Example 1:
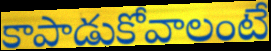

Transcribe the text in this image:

కాపాడుకోవాలంటే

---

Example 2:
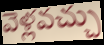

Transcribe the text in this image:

వెళ్లవచ్చు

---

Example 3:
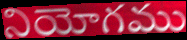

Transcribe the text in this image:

నియోగము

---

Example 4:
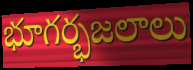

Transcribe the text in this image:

భూగర్భజలాలు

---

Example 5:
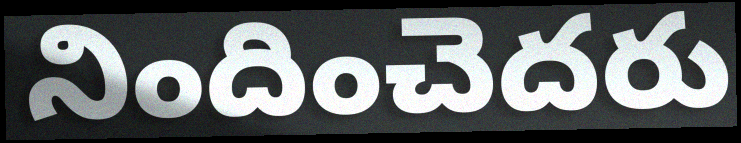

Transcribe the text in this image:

నిందించెదరు